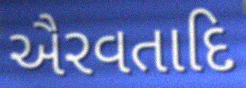
ઐરવતાદિ